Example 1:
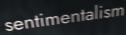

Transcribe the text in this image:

sentimentalism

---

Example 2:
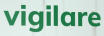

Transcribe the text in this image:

vigilare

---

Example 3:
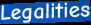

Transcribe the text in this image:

Legalities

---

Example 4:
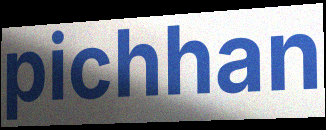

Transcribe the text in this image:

pichhan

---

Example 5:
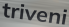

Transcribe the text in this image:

triveni